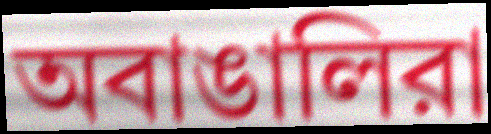
অবাঙালিরা